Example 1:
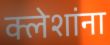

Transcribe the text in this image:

क्लेशांना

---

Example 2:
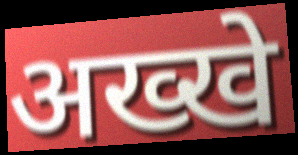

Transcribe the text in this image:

अख्खे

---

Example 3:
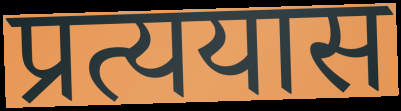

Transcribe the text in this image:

प्रत्ययास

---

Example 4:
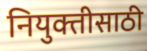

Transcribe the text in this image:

नियुक्तीसाठी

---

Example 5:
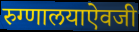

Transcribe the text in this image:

रुग्णालयाऐवजी